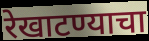
रेखाटण्याचा